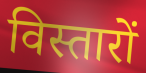
विस्तारों